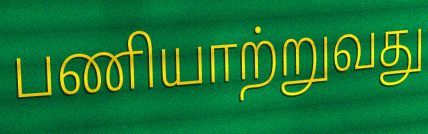
பணியாற்றுவது